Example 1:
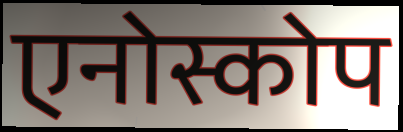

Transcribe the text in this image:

एनोस्कोप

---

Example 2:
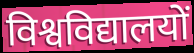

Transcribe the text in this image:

विश्वविद्यालयों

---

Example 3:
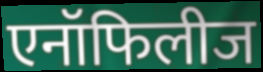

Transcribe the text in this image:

एनॉफिलीज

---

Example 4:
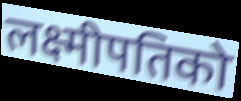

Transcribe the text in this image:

लक्ष्मीपतिको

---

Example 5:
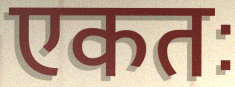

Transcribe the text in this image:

एकतः